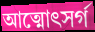
আত্মোৎসর্গ